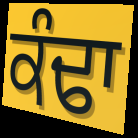
ਕੰਢਾ